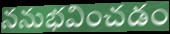
ననుభవించడం